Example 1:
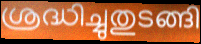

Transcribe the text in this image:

ശ്രദ്ധിച്ചുതുടങ്ങി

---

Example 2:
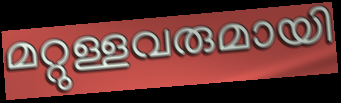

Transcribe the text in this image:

മറ്റുള്ളവരുമായി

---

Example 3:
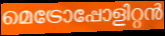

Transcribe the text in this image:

മെട്രോപ്പോളിറ്റൻ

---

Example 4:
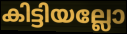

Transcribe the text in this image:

കിട്ടിയല്ലോ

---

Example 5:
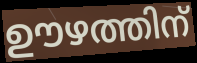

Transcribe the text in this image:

ഊഴത്തിന്